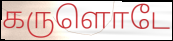
கருளொடே